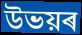
উভয়ৰ